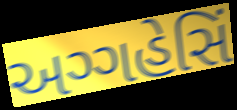
અગ્ગહેસિં